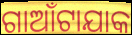
ଗାଆଁଟାଯାକ